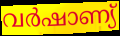
വർഷാണ്യ്